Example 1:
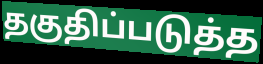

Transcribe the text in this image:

தகுதிப்படுத்த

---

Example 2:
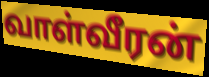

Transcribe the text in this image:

வாள்வீரன்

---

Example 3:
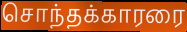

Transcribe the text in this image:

சொந்தக்காரரை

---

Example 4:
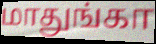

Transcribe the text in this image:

மாதுங்கா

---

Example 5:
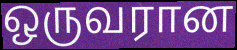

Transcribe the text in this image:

ஒருவரான